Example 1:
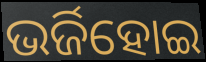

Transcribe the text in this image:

ଭର୍ଜିହୋଇ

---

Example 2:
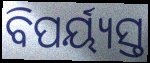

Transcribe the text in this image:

ବିପର୍ୟ୍ୟସ୍ତ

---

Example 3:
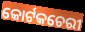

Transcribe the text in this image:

କୋର୍ଟକଚେରୀ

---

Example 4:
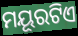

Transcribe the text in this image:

ମୟୂରଟିଏ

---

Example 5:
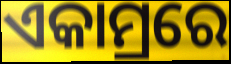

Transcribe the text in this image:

ଏକାମ୍ରରେ